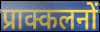
प्राक्कलनों